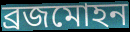
ব্রজমোহন